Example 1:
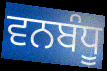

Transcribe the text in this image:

ਵਨਬੰਧੂ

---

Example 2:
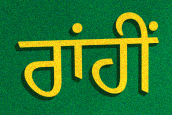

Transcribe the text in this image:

ਰਾਂਹੀਂ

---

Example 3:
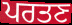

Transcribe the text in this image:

ਪਰਤਣ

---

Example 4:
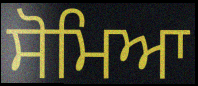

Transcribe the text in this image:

ਸੋਮਿਆ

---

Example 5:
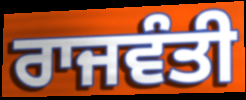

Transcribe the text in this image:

ਰਾਜਵੰਤੀ